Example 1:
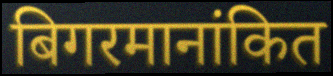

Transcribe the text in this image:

बिगरमानांकित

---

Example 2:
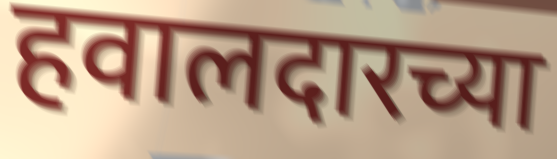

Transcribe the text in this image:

हवालदारच्या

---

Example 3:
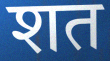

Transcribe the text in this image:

शत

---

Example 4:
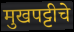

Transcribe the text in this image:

मुखपट्टीचे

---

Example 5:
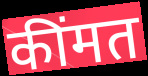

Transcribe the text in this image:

कींमत